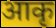
आकृ